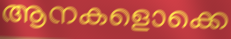
ആനകളൊക്കെ